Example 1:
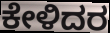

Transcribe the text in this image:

ಕೇಳಿದರ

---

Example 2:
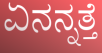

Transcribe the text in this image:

ಏನನ್ನತ್ತೆ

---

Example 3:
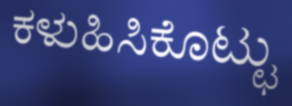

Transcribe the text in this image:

ಕಳುಹಿಸಿಕೊಟ್ಟು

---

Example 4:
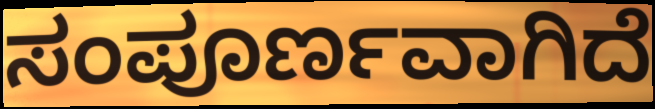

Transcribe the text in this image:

ಸಂಪೂರ್ಣವಾಗಿದೆ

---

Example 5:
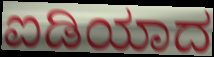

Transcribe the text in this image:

ಐಡಿಯಾದ